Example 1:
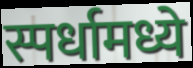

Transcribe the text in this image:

स्पर्धामध्ये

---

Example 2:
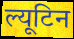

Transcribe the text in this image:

ल्यूटिन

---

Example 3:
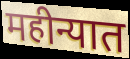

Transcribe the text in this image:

महीन्यात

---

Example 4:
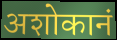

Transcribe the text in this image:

अशोकानं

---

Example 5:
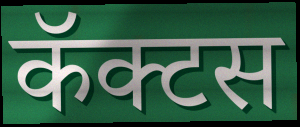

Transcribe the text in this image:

कॅक्टस